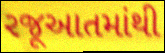
રજૂઆતમાંથી